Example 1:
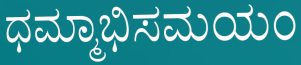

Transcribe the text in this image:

ಧಮ್ಮಾಭಿಸಮಯಂ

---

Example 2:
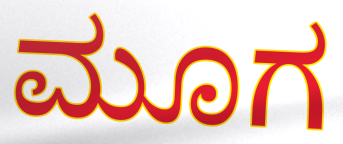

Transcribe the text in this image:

ಮೂಗ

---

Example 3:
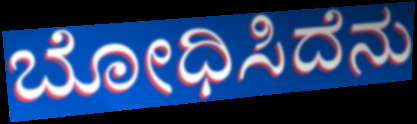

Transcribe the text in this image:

ಬೋಧಿಸಿದೆನು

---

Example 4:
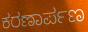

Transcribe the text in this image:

ಕರಣಾರ್ಪಣ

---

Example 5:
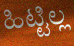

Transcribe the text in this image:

ಹಿಟ್ಟಿಲ್ಲ